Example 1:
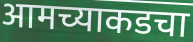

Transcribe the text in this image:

आमच्याकडचा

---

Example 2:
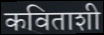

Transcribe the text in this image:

कविताशी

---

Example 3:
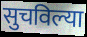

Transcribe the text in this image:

सुचविल्या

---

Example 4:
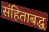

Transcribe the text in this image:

संहिताबद्ध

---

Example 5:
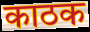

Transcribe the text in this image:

काठक